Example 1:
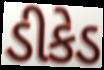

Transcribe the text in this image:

ડીકેડ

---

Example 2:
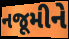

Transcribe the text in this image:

નજૂમીને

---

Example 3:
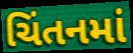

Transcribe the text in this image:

ચિંતનમાં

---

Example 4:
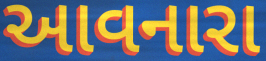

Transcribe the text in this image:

આવનારા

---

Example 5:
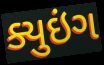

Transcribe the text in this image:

ક્યુઇંગ